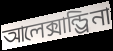
আলেক্সান্ড্রিনা